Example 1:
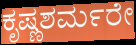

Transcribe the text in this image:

ಕೃಷ್ಣಶರ್ಮರೇ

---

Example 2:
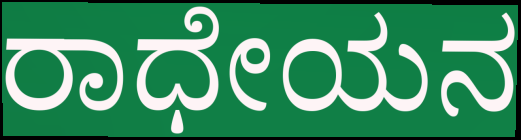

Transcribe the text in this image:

ರಾಧೇಯನ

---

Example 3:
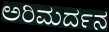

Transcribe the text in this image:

ಅರಿಮರ್ದನ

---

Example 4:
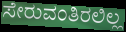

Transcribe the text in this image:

ಸೇರುವಂತಿರಲಿಲ್ಲ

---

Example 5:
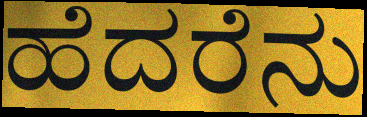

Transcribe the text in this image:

ಹೆದರೆನು